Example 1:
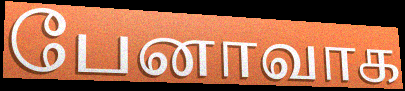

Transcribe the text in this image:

பேனாவாக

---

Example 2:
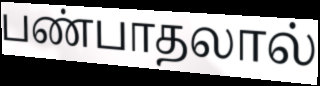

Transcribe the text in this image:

பண்பாதலால்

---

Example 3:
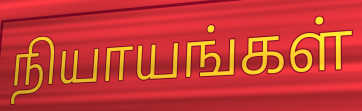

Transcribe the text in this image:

நியாயங்கள்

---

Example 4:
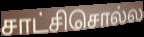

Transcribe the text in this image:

சாட்சிசொல்ல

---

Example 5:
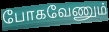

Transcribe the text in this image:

போகவேணும்